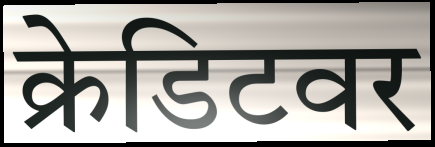
क्रेडिटवर